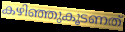
കഴിഞ്ഞുകൂടണത്